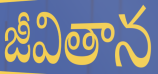
జీవితాన